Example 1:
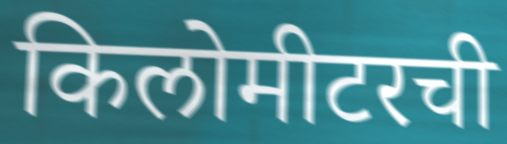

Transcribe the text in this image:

किलोमीटरची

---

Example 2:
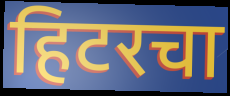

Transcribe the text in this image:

हिटरचा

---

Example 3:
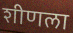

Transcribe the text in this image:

शीणला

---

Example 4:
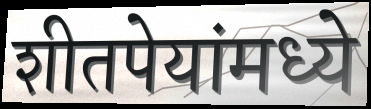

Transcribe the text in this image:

शीतपेयांमध्ये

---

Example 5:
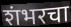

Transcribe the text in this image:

शंभरचा